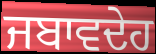
ਜਬਾਵਦੇਹ